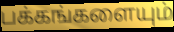
பக்கங்களையும்